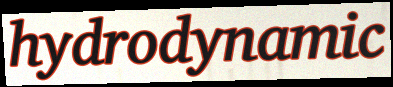
hydrodynamic